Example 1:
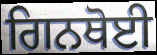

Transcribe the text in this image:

ਗਿਨਥੋਈ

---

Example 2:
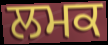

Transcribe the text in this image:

ਲਮਕ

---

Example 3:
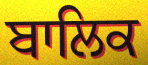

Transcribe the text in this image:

ਬਾਲਿਕ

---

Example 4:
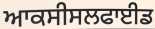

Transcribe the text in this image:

ਆਕਸੀਸਲਫਾਈਡ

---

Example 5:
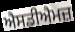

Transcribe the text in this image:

ਐਸਡੀਐਮਜ਼